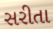
સરીતા